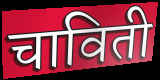
चाविती